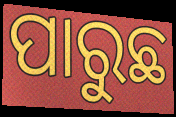
ପାରୁଛ